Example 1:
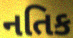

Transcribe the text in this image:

નતિક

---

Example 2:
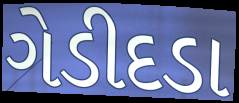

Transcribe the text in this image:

ગેડીદડા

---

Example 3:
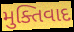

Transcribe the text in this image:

મુક્તિવાદ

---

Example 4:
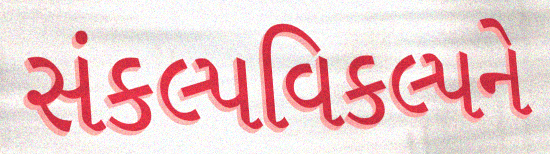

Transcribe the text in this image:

સંકલ્પવિકલ્પને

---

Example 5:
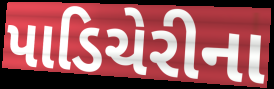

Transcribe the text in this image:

પાડિચેરીના